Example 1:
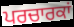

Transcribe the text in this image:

ਪਰਚਾਰਕਾਂ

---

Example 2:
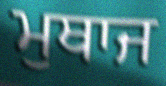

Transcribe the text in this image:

ਮੁਥਾਜ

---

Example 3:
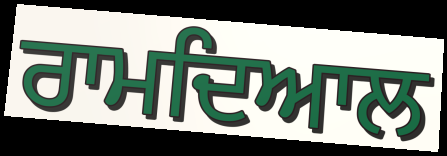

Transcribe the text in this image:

ਰਾਮਦਿਆਲ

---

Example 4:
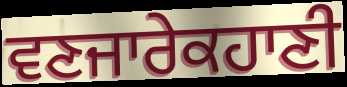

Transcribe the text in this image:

ਵਣਜਾਰੇਕਹਾਣੀ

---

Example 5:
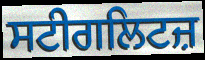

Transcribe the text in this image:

ਸਟੀਗਲਿਟਜ਼